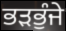
ਭੜਭੁੰਜੇ